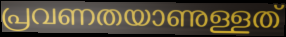
പ്രവണതയാണുള്ളത്